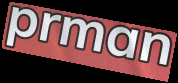
prman